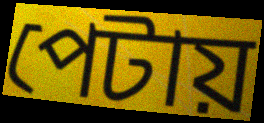
পেটায়